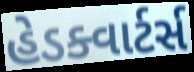
હેડક્વાર્ટર્સ